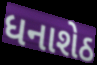
ધનાશેઠ